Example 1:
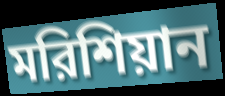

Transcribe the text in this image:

মরিশিয়ান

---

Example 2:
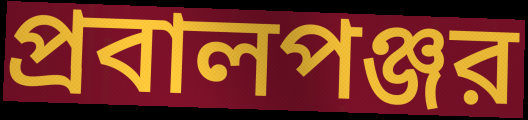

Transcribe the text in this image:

প্রবালপঞ্জর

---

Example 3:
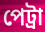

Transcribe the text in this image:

পেট্রা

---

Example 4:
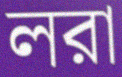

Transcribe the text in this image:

লরা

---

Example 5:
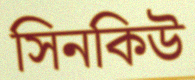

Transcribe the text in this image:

সিনকিউ